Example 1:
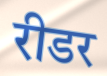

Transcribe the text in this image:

रीडर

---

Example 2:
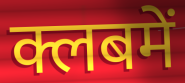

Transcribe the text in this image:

क्लबमें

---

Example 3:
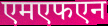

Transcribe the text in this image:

एमएफएन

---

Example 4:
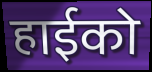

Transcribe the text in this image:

हाईको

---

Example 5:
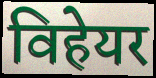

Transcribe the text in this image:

विहेयर